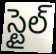
స్టైల్